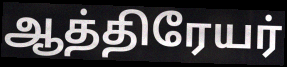
ஆத்திரேயர்